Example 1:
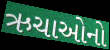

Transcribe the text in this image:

ઋચાઓનો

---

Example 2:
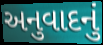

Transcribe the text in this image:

અનુવાદનું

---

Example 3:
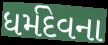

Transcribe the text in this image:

ધર્મદેવના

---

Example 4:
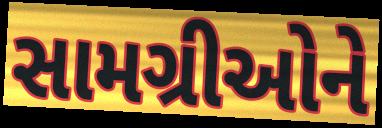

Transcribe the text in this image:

સામગ્રીઓને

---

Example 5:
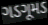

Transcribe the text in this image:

ગડગૂમડ